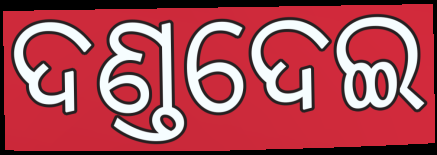
ଦଣ୍ଡଦେଇ